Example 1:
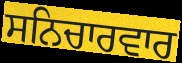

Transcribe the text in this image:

ਸਨਿਚਾਰਵਾਰ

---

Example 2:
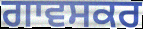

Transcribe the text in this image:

ਗਾਵਸਕਰ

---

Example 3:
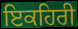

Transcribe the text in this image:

ਇਕਹਿਰੀ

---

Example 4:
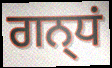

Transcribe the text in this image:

ਗਨ੍ਧਂ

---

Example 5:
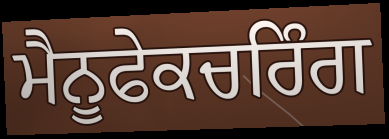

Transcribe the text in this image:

ਮੈਨੂਫੇਕਚਰਿੰਗ